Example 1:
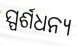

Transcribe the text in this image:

ସ୍ପର୍ଶଧନ୍ୟ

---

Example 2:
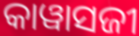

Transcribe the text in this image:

କାୱାସଜୀ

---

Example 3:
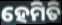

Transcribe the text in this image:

ହେମିତି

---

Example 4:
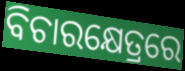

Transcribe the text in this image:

ବିଚାରକ୍ଷେତ୍ରରେ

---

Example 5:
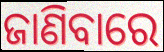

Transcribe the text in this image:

ଜାଣିବାରେ